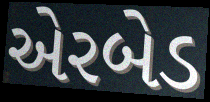
એરબેડ